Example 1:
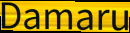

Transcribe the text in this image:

Damaru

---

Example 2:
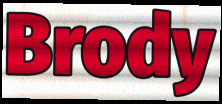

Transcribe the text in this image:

Brody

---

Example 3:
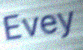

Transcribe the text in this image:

Evey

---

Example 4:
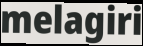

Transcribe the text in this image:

melagiri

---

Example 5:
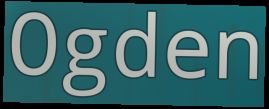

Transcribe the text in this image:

Ogden